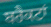
ਬਰੈਕਟਾਂ